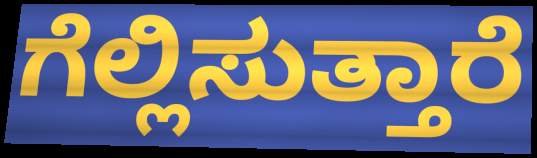
ಗೆಲ್ಲಿಸುತ್ತಾರೆ